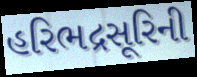
હરિભદ્રસૂરિની